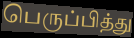
பெருப்பித்து